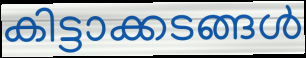
കിട്ടാക്കടങ്ങൾ